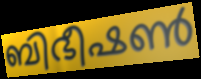
ബിഭീഷൺ